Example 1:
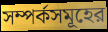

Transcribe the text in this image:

সম্পর্কসমূহের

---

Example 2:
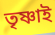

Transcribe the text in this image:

তৃষ্ণাই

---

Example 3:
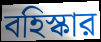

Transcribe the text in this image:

বহিস্কার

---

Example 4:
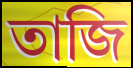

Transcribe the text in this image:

তাজি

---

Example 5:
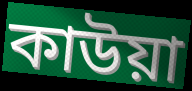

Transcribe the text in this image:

কাউয়া